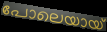
പോലെയായ്